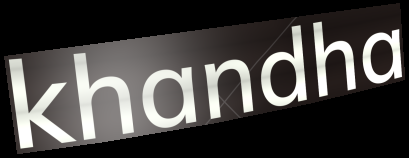
khandha